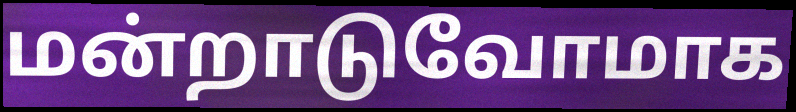
மன்றாடுவோமாக